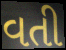
વતી